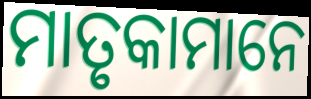
ମାତୃକାମାନେ